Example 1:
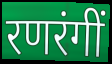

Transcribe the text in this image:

रणरंगीं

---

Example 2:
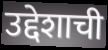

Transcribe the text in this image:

उद्देशाची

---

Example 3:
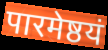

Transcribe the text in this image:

पारमेष्ठयं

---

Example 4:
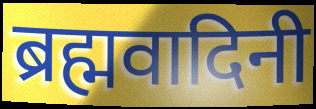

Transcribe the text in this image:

ब्रह्मवादिनी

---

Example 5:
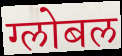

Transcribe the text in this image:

ग्लोबल